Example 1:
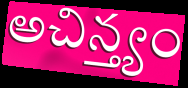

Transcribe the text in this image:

అచిన్త్యం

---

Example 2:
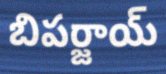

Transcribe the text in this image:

బిపర్జాయ్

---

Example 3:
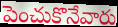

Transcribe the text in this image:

పెంచుకొనేవారు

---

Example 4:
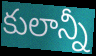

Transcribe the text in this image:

కులాన్నీ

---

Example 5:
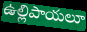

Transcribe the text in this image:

ఉల్లిపాయలూ